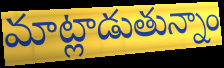
మాట్లాడుతున్నాం